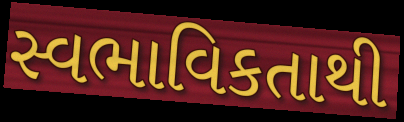
સ્વભાવિકતાથી